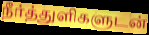
நீர்த்துளிகளுடன்